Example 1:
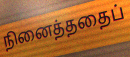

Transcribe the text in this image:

நினைத்ததைப்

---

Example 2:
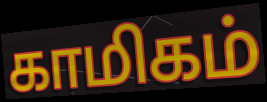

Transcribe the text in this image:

காமிகம்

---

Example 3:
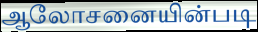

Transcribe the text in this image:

ஆலோசனையின்படி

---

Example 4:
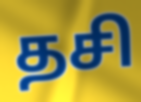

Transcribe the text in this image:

தசி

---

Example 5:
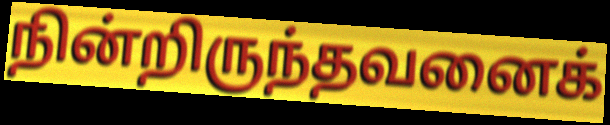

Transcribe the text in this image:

நின்றிருந்தவனைக்